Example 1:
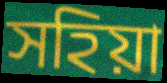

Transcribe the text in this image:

সহিয়া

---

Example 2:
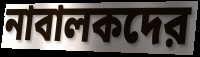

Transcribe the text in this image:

নাবালকদের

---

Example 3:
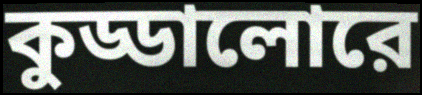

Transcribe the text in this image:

কুড্ডালোরে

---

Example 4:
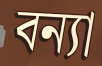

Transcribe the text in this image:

বন্যা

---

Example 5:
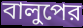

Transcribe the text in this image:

বালুপের